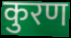
कुरण